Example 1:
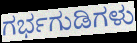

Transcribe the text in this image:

ಗರ್ಭಗುಡಿಗಳು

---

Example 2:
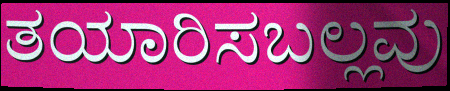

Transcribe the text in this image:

ತಯಾರಿಸಬಲ್ಲವು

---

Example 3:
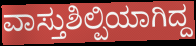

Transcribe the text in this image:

ವಾಸ್ತುಶಿಲ್ಪಿಯಾಗಿದ್ದ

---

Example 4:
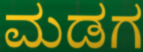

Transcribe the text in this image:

ಮಡಗ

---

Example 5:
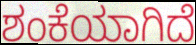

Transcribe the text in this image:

ಶಂಕೆಯಾಗಿದೆ